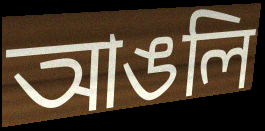
আঙলি